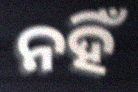
ନହିଁ